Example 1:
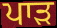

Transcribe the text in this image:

ਪਾੜ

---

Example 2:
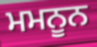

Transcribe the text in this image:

ਮਮਨੂਨ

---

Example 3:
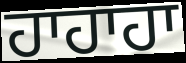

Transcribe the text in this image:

ਹਾਹਾਹਾ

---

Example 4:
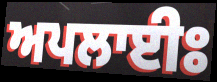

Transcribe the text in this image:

ਅਪਲਾਈਃ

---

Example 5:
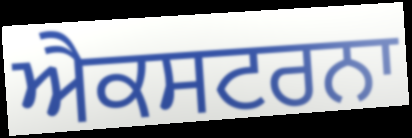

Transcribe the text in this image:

ਐਕਸਟਰਨਾ